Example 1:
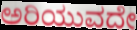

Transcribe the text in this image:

ಅರಿಯುವದೇ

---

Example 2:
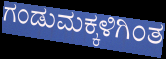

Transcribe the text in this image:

ಗಂಡುಮಕ್ಕಳಿಗಿಂತ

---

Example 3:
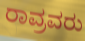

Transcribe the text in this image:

ರಾವ್ರವರು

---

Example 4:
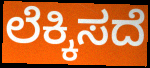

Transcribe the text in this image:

ಲೆಕ್ಕಿಸದೆ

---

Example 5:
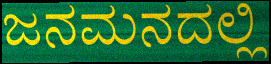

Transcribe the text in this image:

ಜನಮನದಲ್ಲಿ